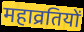
महाव्रतियों